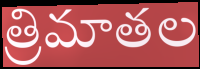
త్రిమాతల